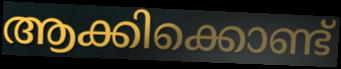
ആക്കിക്കൊണ്ട്